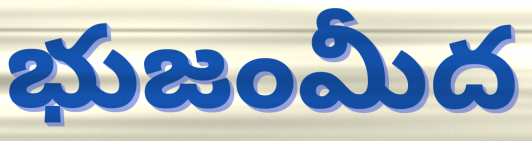
భుజంమీద